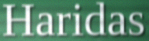
Haridas